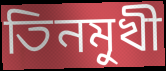
তিনমুখী